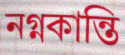
নগ্নকান্তি